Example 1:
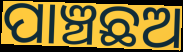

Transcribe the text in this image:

ପାଞ୍ଚଛଅ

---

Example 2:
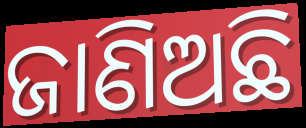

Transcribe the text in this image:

ଜାଣିଅଛି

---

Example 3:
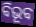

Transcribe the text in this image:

ବିଭୂବ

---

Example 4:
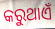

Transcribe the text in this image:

କରୁଥାଏଁ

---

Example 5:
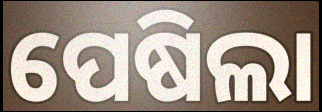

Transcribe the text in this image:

ପେଷିଲା